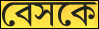
বেসকে